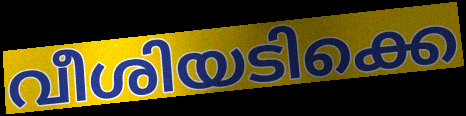
വീശിയടിക്കെ